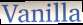
Vanilla